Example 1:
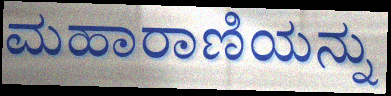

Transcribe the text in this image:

ಮಹಾರಾಣಿಯನ್ನು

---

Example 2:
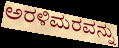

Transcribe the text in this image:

ಅರಳಿಮರವನ್ನು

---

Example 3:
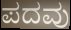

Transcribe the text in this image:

ಪದವು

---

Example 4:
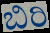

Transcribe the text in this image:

ಬಿರಿ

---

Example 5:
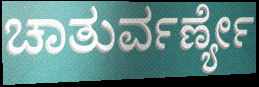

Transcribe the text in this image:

ಚಾತುರ್ವರ್ಣ್ಯೇ